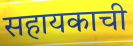
सहायकाची